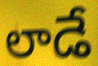
లాడే